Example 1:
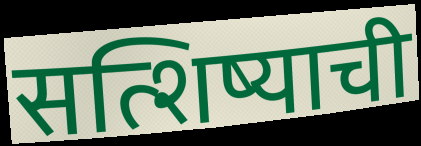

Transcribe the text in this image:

सत्शिष्याची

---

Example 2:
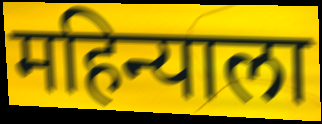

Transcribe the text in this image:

महिन्याला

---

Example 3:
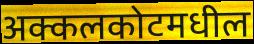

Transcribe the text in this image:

अक्कलकोटमधील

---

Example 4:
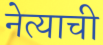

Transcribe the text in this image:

नेत्याची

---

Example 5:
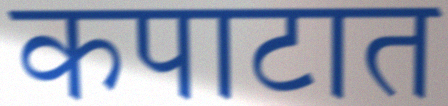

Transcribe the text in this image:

कपाटात